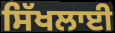
ਸਿੱਖਲਾਈ